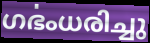
ഗൎഭംധരിച്ചു